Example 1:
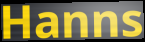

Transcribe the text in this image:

Hanns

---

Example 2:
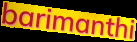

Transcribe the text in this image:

barimanthi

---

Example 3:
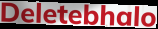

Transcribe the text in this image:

Deletebhalo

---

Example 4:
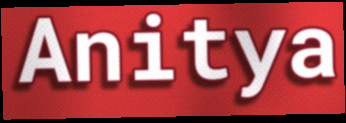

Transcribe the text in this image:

Anitya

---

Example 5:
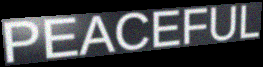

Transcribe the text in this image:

PEACEFUL